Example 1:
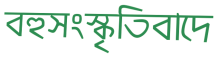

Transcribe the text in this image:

বহুসংস্কৃতিবাদে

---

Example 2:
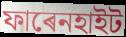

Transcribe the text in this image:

ফাৰেনহাইট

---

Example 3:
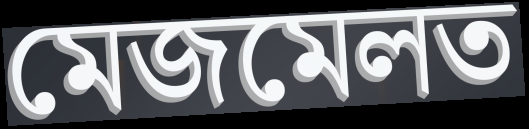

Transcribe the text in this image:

মেজমেলত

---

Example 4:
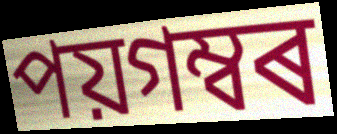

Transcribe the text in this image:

পয়গম্বৰ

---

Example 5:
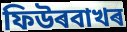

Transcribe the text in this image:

ফিউৰবাখৰ